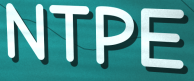
NTPE